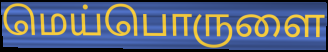
மெய்பொருளை